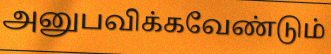
அனுபவிக்கவேண்டும்